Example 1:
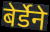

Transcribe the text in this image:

बेर्डेने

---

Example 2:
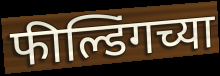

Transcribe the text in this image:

फील्डिंगच्या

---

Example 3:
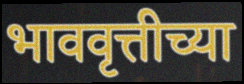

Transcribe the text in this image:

भाववृत्तीच्या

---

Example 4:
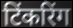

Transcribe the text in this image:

टिंकरिंग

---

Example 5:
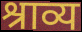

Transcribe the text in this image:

श्राव्य